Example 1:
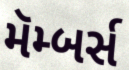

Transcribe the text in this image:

મૅમ્બર્સ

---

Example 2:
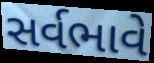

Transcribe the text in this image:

સર્વભાવે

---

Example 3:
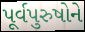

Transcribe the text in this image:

પૂર્વપુરુષોને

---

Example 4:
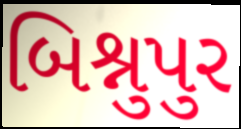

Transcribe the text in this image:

બિશ્નુપુર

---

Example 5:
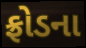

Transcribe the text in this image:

ફ્રોડના